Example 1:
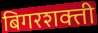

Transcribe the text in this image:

बिगरशक्ती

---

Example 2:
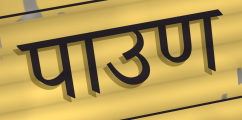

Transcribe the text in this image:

पाउण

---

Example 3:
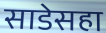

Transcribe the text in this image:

साडेसहा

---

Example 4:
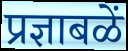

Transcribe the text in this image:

प्रज्ञाबळें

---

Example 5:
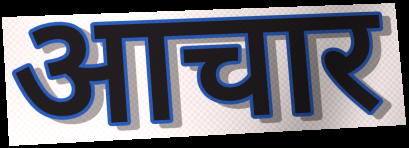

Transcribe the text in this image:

आचार